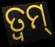
ତ୍ଵମ୍